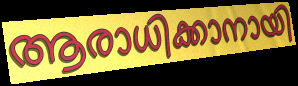
ആരാധിക്കാനായി